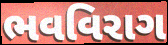
ભવવિરાગ